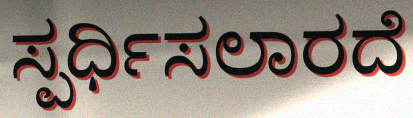
ಸ್ಪರ್ಧಿಸಲಾರದೆ